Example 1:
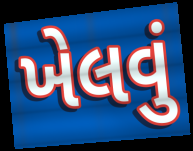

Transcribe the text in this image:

ખેલવું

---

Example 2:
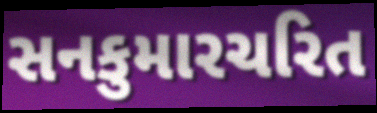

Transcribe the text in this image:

સનકુમારચરિત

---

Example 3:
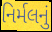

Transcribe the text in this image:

નિર્મલનું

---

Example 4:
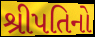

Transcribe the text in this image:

શ્રીપતિનો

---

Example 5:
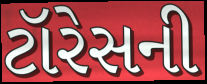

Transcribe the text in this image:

ટૉરેસની